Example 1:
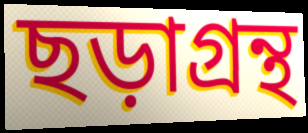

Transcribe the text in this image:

ছড়াগ্রন্থ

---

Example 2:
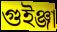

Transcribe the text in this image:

গুইঞ্জা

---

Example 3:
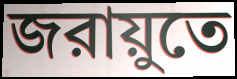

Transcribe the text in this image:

জরায়ুতে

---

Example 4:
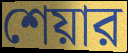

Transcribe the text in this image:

শেয়ার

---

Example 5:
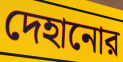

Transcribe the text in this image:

দেহানোর